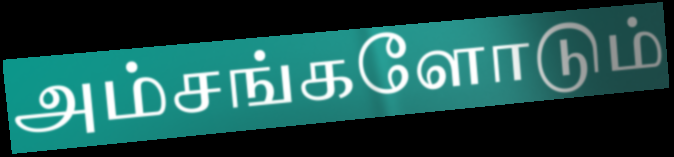
அம்சங்களோடும்